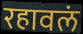
रहावलं